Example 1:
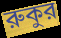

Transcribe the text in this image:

রুকুর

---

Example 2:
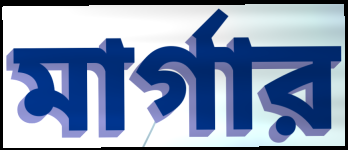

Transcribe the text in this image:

মার্গার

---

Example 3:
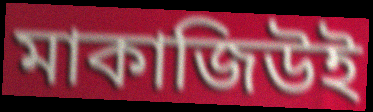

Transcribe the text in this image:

মাকাজিউই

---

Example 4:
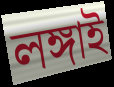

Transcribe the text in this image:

লঙ্গাই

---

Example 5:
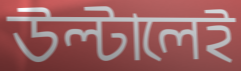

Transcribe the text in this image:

উল্টালেই